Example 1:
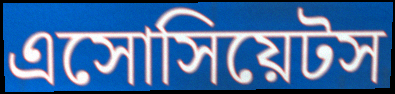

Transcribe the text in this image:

এসোসিয়েটস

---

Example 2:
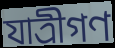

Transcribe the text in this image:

যাত্রীগণ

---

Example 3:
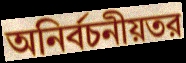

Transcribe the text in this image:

অনির্বচনীয়তর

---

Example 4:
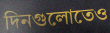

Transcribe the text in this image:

দিনগুলোতেও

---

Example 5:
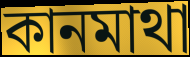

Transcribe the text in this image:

কানমাথা